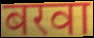
बरवा